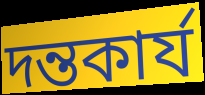
দন্তকার্য